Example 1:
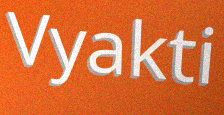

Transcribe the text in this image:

Vyakti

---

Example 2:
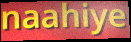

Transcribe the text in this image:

naahiye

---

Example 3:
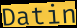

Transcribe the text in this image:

Datin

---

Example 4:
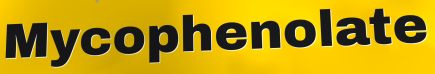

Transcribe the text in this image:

Mycophenolate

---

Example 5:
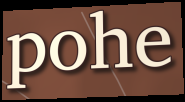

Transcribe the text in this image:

pohe